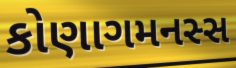
કોણાગમનસ્સ